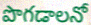
పొగడాలనో